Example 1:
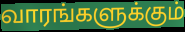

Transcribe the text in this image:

வாரங்களுக்கும்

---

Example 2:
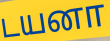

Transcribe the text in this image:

டயனா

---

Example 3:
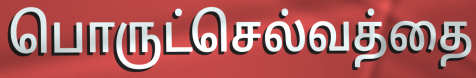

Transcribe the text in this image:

பொருட்செல்வத்தை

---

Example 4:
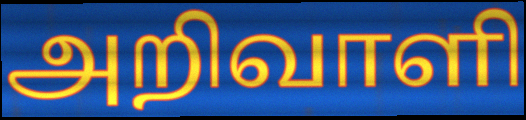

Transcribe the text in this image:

அறிவாளி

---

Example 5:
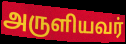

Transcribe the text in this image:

அருளியவர்